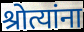
श्रोत्यांना